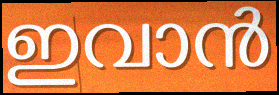
ഇവാൻ